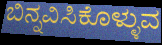
ಬಿನ್ನವಿಸಿಕೊಳ್ಳುವ